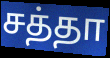
சத்தா